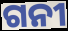
ଗନୀ